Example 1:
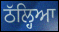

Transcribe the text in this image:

ਠੱਲ੍ਹਿਆ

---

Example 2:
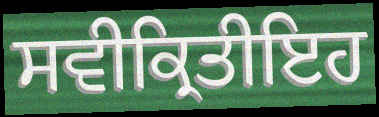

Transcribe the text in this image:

ਸਵੀਕ੍ਰਿਤੀਇਹ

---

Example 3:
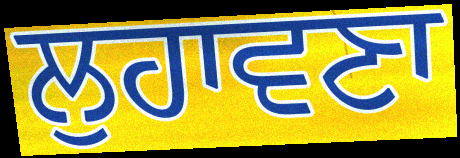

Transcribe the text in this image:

ਲੁਹਾਵਣਾ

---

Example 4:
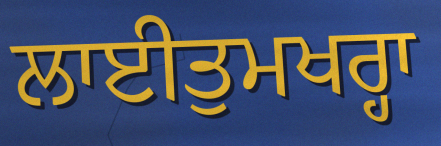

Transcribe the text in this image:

ਲਾਈਤੁਮਖਰ੍ਹਾ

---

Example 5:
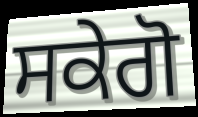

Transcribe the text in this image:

ਸਕੇਗੋ